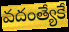
వదంత్యేకే